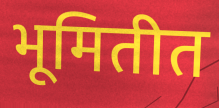
भूमितीत